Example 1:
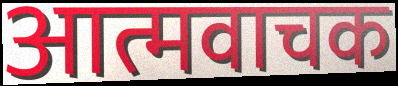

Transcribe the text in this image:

आत्मवाचक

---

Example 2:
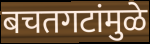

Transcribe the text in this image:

बचतगटांमुळे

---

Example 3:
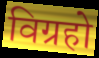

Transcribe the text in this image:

विग्रहो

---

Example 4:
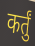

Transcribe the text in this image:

कर्तुं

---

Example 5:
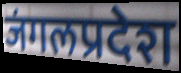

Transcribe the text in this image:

जंगलप्रदेश